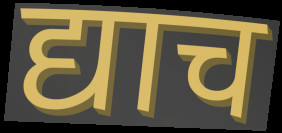
द्याच